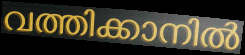
വത്തിക്കാനിൽ